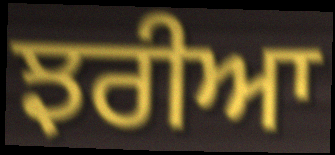
ਝਰੀਆ